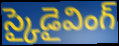
స్కైడైవింగ్